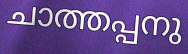
ചാത്തപ്പനു